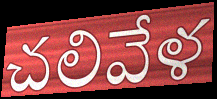
చలివేళ